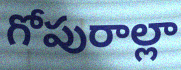
గోపురాల్లా